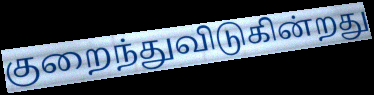
குறைந்துவிடுகின்றது